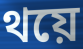
থয়ে